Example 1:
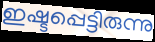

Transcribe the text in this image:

ഇഷ്ടപ്പെട്ടിരുന്നു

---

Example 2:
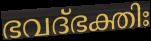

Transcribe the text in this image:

ഭവദ്ഭക്തിഃ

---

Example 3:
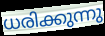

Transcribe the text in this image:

ധരിക്കുന്നു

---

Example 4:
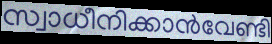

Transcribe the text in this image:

സ്വാധീനിക്കാൻവേണ്ടി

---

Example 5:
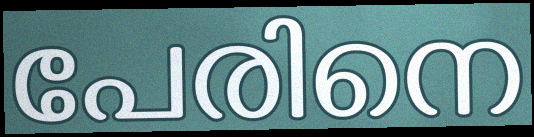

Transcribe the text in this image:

പേരിനെ